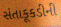
સંતાકૂકડીની